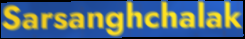
Sarsanghchalak